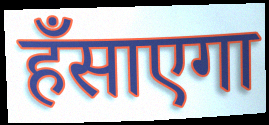
हँसाएगा